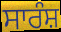
ਸਾਰੰਸ਼